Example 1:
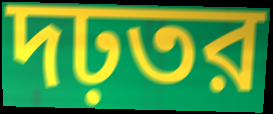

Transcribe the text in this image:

দঢ়তর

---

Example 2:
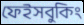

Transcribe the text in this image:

ফেইসবুকিং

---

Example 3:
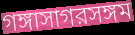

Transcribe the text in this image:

গঙ্গাসাগরসঙ্গম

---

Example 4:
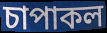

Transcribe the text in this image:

চাপাকল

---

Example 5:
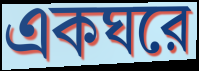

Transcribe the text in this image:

একঘরে